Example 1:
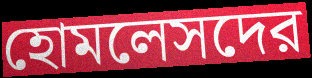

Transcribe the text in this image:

হোমলেসদের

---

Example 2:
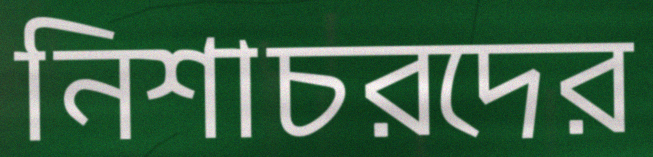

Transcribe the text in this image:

নিশাচরদের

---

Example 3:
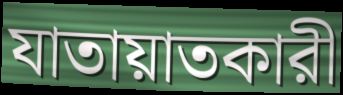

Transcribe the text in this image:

যাতায়াতকারী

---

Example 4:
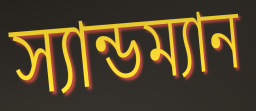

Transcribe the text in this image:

স্যান্ডম্যান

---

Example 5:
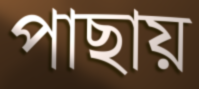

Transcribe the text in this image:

পাছায়